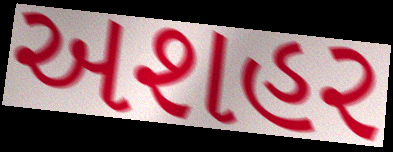
અશહર